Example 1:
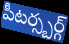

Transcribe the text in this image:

పీటర్స్బర్గ్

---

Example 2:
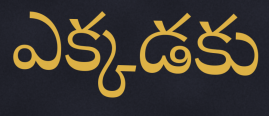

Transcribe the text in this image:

ఎక్కడకు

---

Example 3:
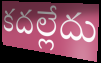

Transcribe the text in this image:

కదల్లేదు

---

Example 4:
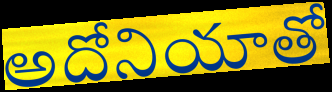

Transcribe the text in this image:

అదోనియాతో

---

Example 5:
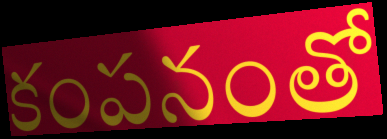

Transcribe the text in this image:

కంపనంతో